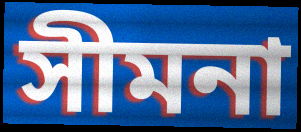
সীমনা